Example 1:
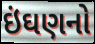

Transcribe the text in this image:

ઇંઘણનો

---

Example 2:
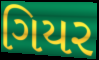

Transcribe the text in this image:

ગિયર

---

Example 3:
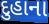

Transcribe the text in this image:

દુહાના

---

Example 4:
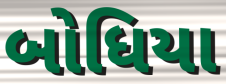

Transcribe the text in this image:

બોધિયા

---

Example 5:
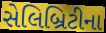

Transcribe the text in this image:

સેલિબ્રિટીના